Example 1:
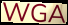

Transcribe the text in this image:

WGA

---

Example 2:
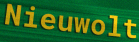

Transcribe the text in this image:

Nieuwolt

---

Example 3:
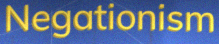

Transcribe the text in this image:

Negationism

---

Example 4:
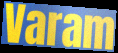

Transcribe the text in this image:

Varam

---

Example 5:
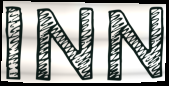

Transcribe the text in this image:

INN